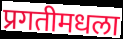
प्रगतीमधला